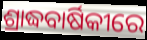
ଶ୍ରାଦ୍ଧବାର୍ଷିକୀରେ